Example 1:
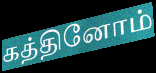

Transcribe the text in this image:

கத்தினோம்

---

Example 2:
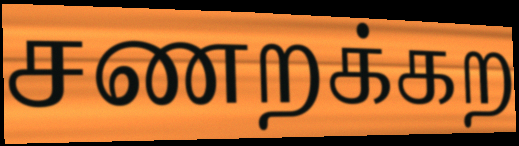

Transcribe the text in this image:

சணறக்கற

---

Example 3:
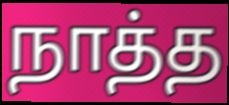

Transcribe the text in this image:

நாத்த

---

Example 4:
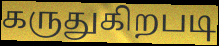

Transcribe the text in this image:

கருதுகிறபடி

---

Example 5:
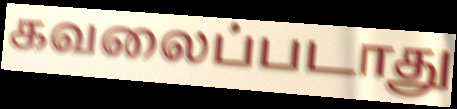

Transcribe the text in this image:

கவலைப்படாது